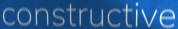
constructive